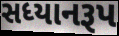
સધ્યાનરૂપ